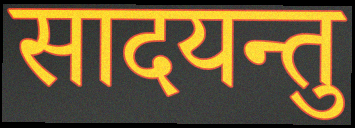
सादयन्तु